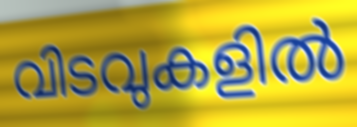
വിടവുകളിൽ